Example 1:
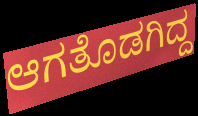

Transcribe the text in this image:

ಆಗತೊಡಗಿದ್ದ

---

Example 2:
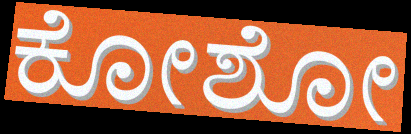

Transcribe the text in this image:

ಕೋಶೋ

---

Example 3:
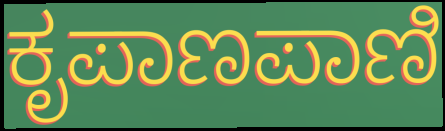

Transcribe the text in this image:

ಕೃಪಾಣಪಾಣಿ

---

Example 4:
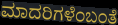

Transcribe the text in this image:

ಮಾದರಿಗಳೆಂಬಂತೆ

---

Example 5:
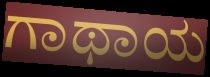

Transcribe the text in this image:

ಗಾಥಾಯ